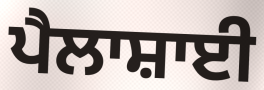
ਪੈਲਾਸ਼ਾਈ